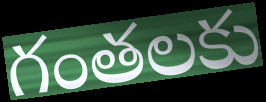
గంతలకు